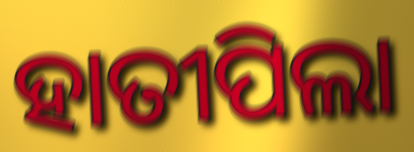
ହାତୀପିଲା